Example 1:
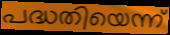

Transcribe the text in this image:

പദ്ധതിയെന്ന്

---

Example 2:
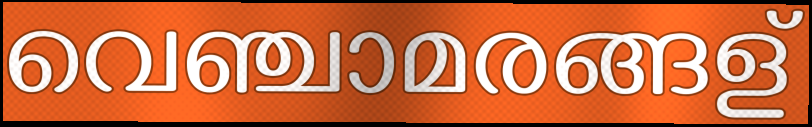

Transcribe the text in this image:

വെഞ്ചാമരങ്ങള്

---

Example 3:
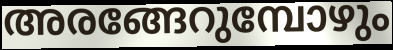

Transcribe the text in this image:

അരങ്ങേറുമ്പോഴും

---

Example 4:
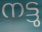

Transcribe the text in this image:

നട്ടു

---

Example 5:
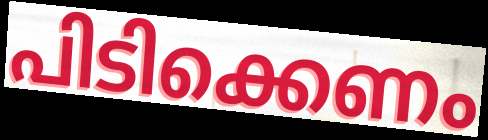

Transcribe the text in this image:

പിടിക്കെണം